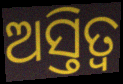
ଅସ୍ତିତ୍ଵ